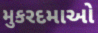
મુકરદમાઓ